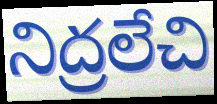
నిద్రలేచి